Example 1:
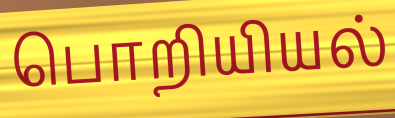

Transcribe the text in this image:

பொறியியல்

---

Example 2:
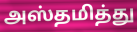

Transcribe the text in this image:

அஸ்தமித்து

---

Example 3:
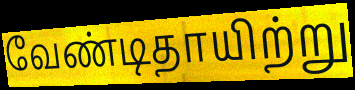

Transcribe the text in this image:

வேண்டிதாயிற்று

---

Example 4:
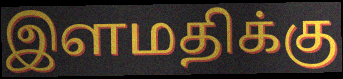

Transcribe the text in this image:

இளமதிக்கு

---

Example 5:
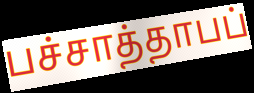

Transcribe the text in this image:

பச்சாத்தாபப்